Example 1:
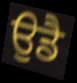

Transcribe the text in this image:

ਉਡੈ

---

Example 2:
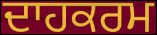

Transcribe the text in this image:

ਦਾਹਕਰਮ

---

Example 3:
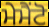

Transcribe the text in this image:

ਮੇਮੈਂਟੋ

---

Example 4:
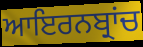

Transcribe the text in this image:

ਆਇਰਨਬ੍ਰਾਂਚ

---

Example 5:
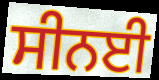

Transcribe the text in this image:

ਸੀਨਈ